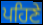
ਪਹਿਣੇ